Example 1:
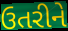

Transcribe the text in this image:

ઉતરીને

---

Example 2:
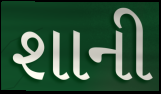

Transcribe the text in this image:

શાની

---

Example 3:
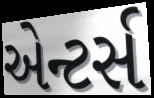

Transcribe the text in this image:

એન્ટર્સ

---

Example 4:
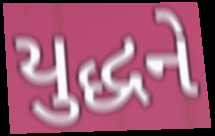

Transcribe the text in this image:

યુદ્ધને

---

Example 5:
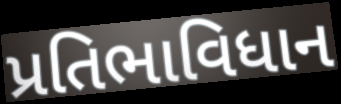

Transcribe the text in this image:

પ્રતિભાવિધાન